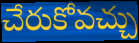
చేరుకోవచ్చు